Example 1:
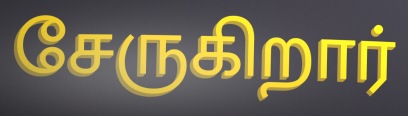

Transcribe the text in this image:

சேருகிறார்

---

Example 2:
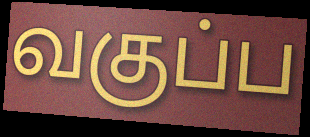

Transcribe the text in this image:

வகுப்ப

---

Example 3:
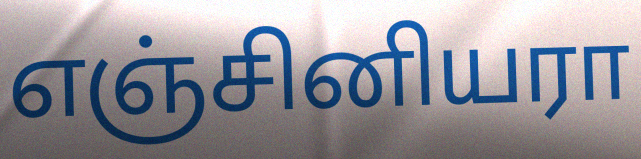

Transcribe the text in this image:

எஞ்சினியரா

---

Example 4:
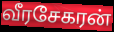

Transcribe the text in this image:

வீரசேகரன்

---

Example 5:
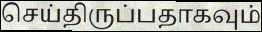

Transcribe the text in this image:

செய்திருப்பதாகவும்